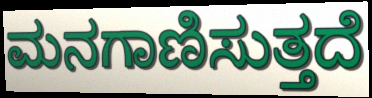
ಮನಗಾಣಿಸುತ್ತದೆ